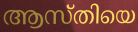
ആസ്തിയെ